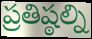
ప్రతిష్ఠల్ని